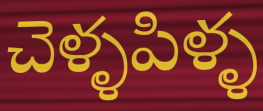
చెళ్ళపిళ్ళ